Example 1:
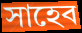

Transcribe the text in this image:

সাহেব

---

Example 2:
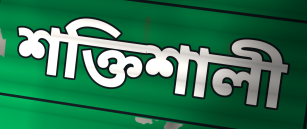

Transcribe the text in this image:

শক্তিশালী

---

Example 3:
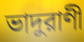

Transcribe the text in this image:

ভাদুরাণী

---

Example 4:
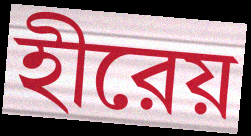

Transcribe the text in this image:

হীরেয়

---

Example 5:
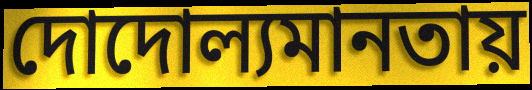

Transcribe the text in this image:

দোদোল্যমানতায়